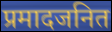
प्रमादजनित